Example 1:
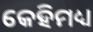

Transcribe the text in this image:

କେହିମଧ୍ୟ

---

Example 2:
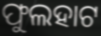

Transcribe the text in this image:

ଫୁଲହାଟ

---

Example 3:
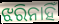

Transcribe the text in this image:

ଝରିନାହିଁ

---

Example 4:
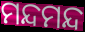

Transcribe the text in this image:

ମନ୍ଦମନ୍ଦ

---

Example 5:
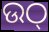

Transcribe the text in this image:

ଉଠ୍